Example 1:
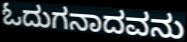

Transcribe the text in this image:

ಓದುಗನಾದವನು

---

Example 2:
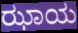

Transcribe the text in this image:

ಝಾಯ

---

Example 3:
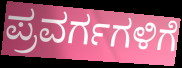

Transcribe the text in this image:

ಪ್ರವರ್ಗಗಳಿಗೆ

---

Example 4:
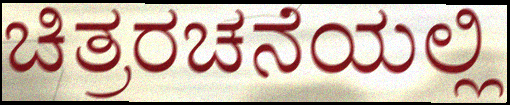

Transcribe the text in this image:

ಚಿತ್ರರಚನೆಯಲ್ಲಿ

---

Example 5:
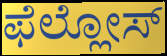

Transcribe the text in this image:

ಫೆಲ್ಲೋಸ್